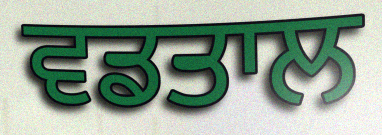
ਵਡਤਾਲ